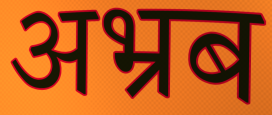
अभ्रब